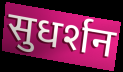
सुधर्शन